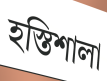
হস্তিশালা